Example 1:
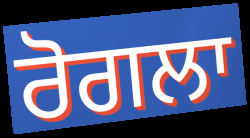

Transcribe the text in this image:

ਰੋਗਲਾ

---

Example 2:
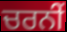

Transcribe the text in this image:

ਚਰਨੀਂ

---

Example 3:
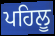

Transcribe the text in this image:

ਪਹਿਲੂ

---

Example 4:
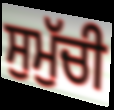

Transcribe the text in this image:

ਸੁਮੁੱਚੀ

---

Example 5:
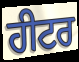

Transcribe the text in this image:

ਹੀਟਰ